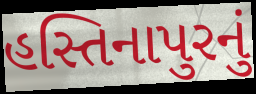
હસ્તિનાપુરનું